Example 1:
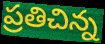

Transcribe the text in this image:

ప్రతిచిన్న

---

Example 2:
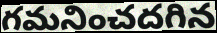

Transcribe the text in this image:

గమనించదగిన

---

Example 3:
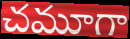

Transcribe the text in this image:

చమూగా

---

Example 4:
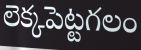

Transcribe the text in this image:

లెక్కపెట్టగలం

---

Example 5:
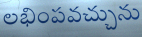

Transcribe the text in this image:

లభింపవచ్చును